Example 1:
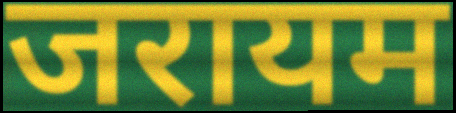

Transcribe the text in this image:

जरायम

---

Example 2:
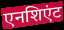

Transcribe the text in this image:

एनशिएंट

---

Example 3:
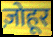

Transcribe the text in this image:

ज़ोहूर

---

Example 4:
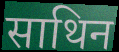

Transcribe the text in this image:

साथिन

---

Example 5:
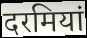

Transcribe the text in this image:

दरमियां